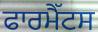
ਫਾਰਮੈੱਟਸ